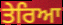
ਤੇਰਿਆ